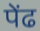
पेंढ